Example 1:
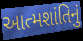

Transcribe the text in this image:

આત્મશાંતિનું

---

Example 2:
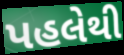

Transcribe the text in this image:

પહલેથી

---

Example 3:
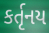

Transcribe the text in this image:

કર્તૃનય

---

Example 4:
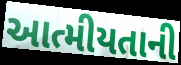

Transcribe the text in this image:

આત્મીયતાની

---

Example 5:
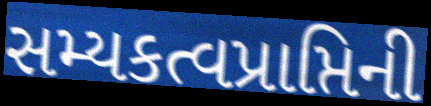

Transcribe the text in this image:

સમ્યકત્વપ્રાપ્તિની